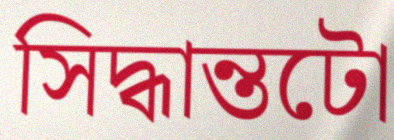
সিদ্ধান্তটো